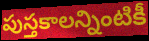
పుస్తకాలన్నింటికీ